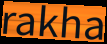
rakha